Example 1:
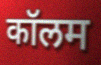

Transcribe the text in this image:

कॉलम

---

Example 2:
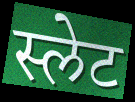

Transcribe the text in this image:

स्लेट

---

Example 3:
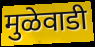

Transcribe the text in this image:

मुळेवाडी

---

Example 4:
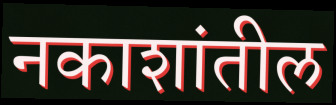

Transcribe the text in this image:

नकाशांतील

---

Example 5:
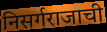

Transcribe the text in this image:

निसर्गराजाची